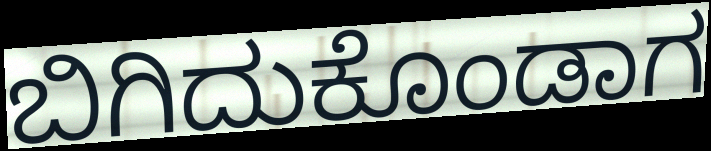
ಬಿಗಿದುಕೊಂಡಾಗ